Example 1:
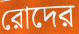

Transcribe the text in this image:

রোদের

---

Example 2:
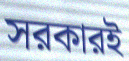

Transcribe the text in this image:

সরকারই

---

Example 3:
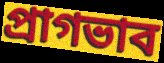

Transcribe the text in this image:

প্রাগভাব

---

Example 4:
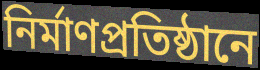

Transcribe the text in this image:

নির্মাণপ্রতিষ্ঠানে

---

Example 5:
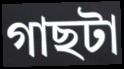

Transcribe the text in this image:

গাছটা